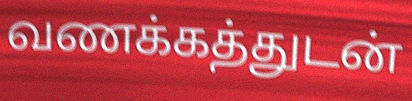
வணக்கத்துடன்